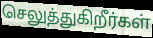
செலுத்துகிறீர்கள்